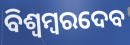
ବିଶ୍ୱମ୍ବରଦେବ